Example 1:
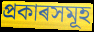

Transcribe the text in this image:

প্ৰকাৰসমূহ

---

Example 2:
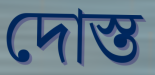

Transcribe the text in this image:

দোস্ত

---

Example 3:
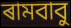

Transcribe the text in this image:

ৰামবাবু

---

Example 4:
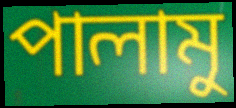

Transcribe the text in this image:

পালামু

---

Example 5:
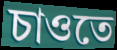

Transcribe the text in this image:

চাওতে